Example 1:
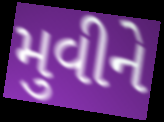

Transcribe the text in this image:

મુવીને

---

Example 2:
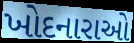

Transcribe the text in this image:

ખોદનારાઓ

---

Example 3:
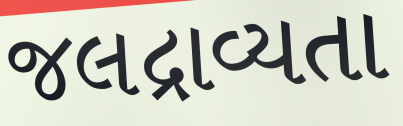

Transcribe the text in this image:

જલદ્રાવ્યતા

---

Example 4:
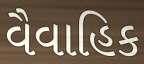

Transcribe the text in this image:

વૈવાહિક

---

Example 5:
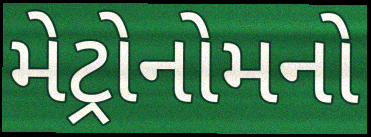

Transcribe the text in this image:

મેટ્રોનોમનો